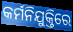
କର୍ମନିଯୁକ୍ତିରେ